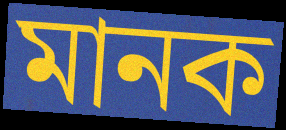
মানক